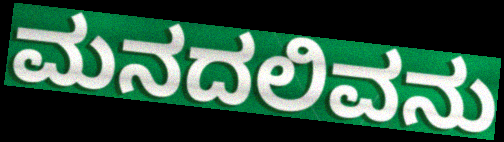
ಮನದಲಿವನು